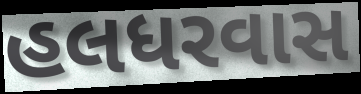
હલધરવાસ